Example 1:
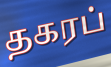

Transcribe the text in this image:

தகரப்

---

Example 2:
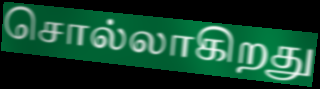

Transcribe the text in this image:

சொல்லாகிறது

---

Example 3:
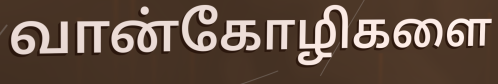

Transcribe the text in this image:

வான்கோழிகளை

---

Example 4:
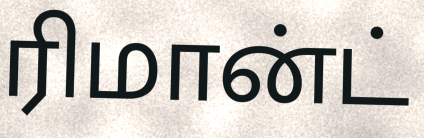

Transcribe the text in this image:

ரிமான்ட்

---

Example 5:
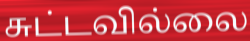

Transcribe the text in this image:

சுட்டவில்லை